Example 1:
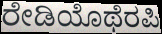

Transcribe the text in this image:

ರೇಡಿಯೊಥೆರಪಿ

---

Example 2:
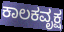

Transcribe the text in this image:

ಕಾಲಕವೃಕ್ಷ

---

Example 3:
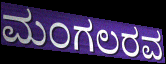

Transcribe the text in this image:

ಮಂಗಲರವ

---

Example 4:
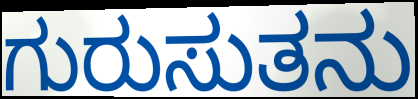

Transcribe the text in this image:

ಗುರುಸುತನು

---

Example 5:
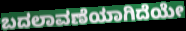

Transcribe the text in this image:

ಬದಲಾವಣೆಯಾಗಿದೆಯೇ